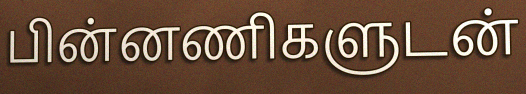
பின்னணிகளுடன்